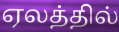
ஏலத்தில்